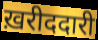
ख़रीददारी